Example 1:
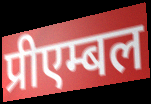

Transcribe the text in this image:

प्रीएम्बल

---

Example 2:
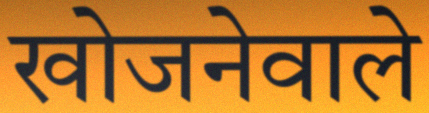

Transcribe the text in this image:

खोजनेवाले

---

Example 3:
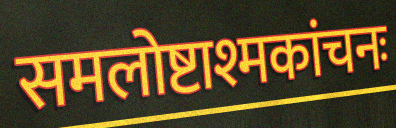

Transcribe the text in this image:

समलोष्टाश्मकांचनः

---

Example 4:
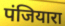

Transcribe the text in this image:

पंजियारा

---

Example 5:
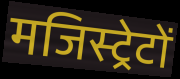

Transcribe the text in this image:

मजिस्ट्रेटों